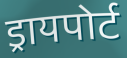
ड्रायपोर्ट